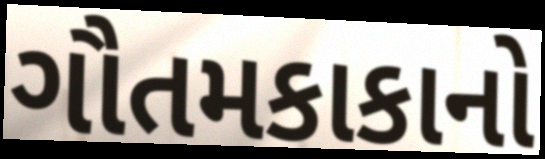
ગૌતમકાકાનો